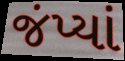
જંપ્યાં